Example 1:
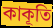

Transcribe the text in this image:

কাকূতি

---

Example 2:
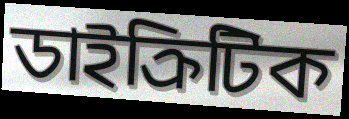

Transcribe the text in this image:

ডাইক্ৰিটিক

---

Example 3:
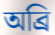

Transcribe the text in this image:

অব্ৰি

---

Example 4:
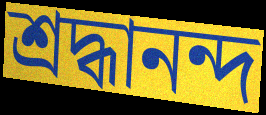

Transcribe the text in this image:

শ্ৰদ্ধানন্দ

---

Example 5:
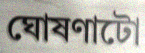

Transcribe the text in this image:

ঘোষণাটো